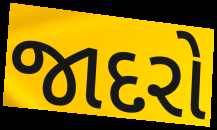
જાદરો